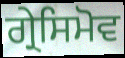
ਗ੍ਰੇਸਿਮੋਵ